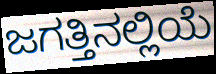
ಜಗತ್ತಿನಲ್ಲಿಯೆ